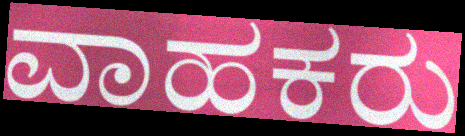
ವಾಹಕರು